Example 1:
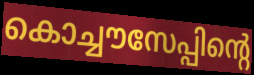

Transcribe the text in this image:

കൊച്ചൗസേപ്പിന്റെ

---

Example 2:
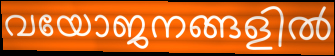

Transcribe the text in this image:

വയോജനങ്ങളിൽ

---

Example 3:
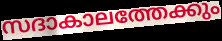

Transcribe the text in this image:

സദാകാലത്തേക്കും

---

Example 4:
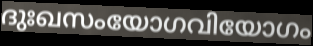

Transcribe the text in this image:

ദുഃഖസംയോഗവിയോഗം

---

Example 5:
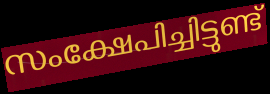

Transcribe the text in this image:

സംക്ഷേപിച്ചിട്ടുണ്ട്